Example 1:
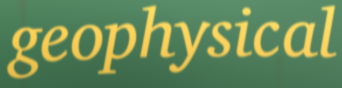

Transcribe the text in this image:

geophysical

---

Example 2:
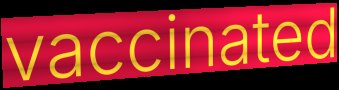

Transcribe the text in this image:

vaccinated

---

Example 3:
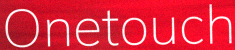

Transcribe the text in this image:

Onetouch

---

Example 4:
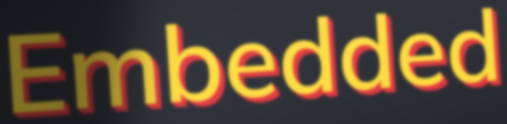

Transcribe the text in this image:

Embedded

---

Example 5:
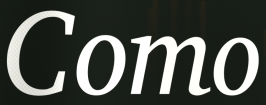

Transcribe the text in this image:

Como